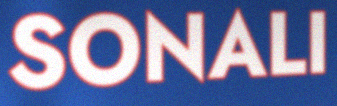
SONALI